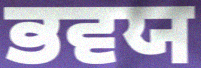
ਭਵਯ